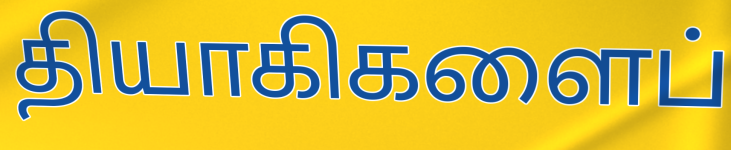
தியாகிகளைப்